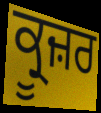
ਕ੍ਰੂਜ਼ਰ